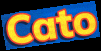
Cato